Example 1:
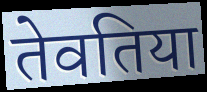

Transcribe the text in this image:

तेवतिया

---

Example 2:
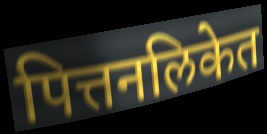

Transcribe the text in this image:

पित्तनलिकेत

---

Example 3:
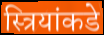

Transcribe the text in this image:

स्त्रियांकडे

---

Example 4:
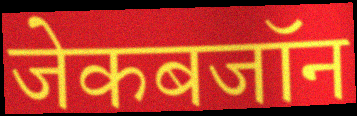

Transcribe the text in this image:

जेकबजॉन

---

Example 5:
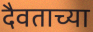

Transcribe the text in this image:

दैवताच्या